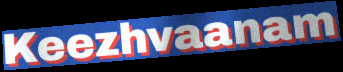
Keezhvaanam